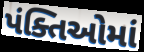
પંક્તિઓમાં